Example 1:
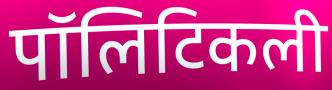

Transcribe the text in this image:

पॉलिटिकली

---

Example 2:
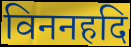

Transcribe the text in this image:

विननहदि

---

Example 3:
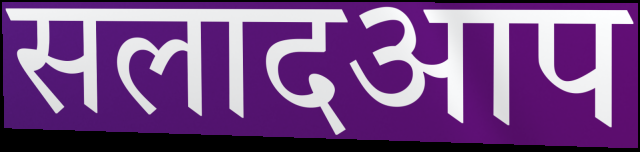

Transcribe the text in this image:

सलादआप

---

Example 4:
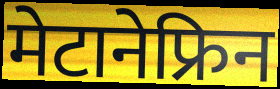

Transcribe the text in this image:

मेटानेफ्रिन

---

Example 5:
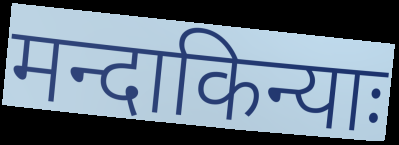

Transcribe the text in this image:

मन्दाकिन्याः